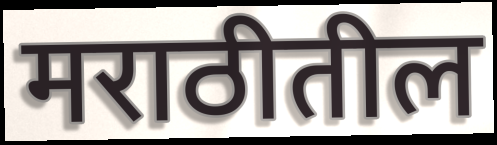
मराठीतील